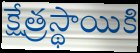
క్షేత్రస్థాయికి